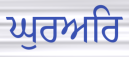
ਘੁਰਅਰਿ